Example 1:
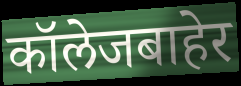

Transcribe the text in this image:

कॉलेजबाहेर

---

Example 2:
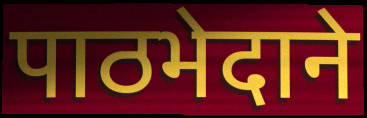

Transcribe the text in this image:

पाठभेदाने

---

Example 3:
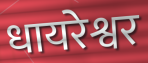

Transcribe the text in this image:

धायरेश्वर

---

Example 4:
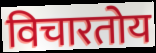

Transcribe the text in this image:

विचारतोय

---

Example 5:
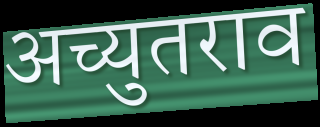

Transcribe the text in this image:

अच्युतराव